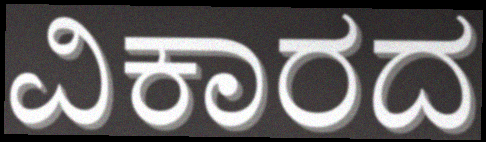
ವಿಕಾರದ